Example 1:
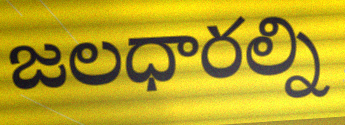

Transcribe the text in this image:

జలధారల్ని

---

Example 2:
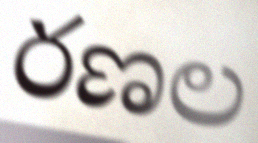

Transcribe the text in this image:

రణల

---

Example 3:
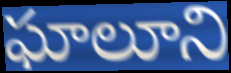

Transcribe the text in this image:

ఘాలూని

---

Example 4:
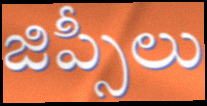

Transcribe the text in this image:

జిప్సీలు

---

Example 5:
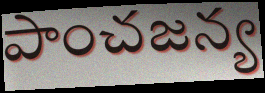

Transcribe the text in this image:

పాంచజన్య